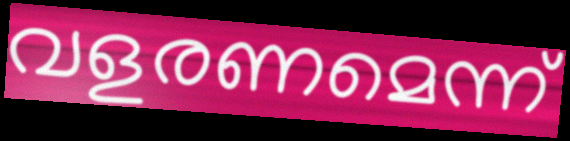
വളരണമെന്ന്